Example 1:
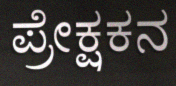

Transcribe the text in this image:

ಪ್ರೇಕ್ಷಕನ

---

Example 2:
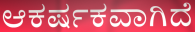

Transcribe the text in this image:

ಆಕರ್ಷಕವಾಗಿದೆ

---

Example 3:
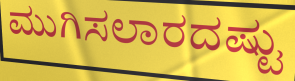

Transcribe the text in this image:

ಮುಗಿಸಲಾರದಷ್ಟು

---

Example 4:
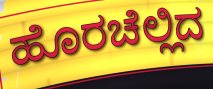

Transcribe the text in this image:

ಹೊರಚೆಲ್ಲಿದ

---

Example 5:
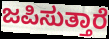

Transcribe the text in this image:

ಜಪಿಸುತ್ತಾರೆ